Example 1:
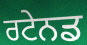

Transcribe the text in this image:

ਰਟੇਨਡ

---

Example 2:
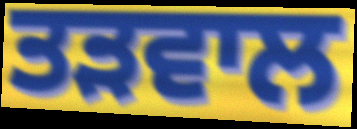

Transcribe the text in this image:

ਤੜਵਾਲ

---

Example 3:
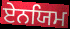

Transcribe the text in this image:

ਏਨਯਿਮ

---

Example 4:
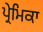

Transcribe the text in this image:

ਪ੍ਰੇਮਿਕਾ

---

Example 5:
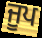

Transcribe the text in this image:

ਜੂਪ